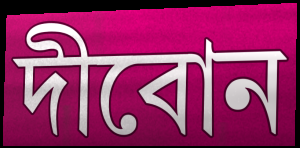
দীবোন